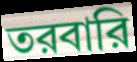
তরবারি